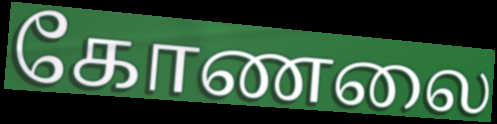
கோணலை